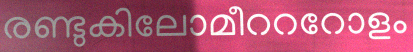
രണ്ടുകിലോമീറററോളം